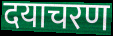
दयाचरण